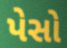
પેસો